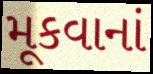
મૂકવાનાં